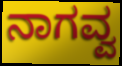
ನಾಗವ್ವ